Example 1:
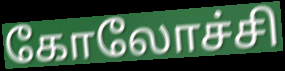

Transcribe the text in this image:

கோலோச்சி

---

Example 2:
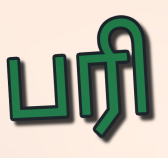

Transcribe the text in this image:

பரி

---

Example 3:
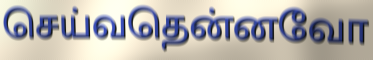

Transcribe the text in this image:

செய்வதென்னவோ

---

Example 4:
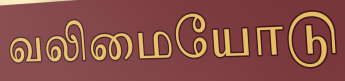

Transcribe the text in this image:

வலிமையோடு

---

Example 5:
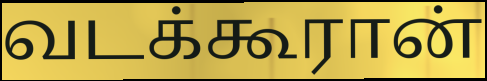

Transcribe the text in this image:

வடக்கூரான்